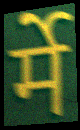
र्मे